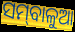
ସମ୍‌ବାଳୁଆ